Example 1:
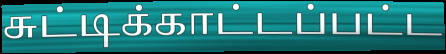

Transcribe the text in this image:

சுட்டிக்காட்டப்பட்ட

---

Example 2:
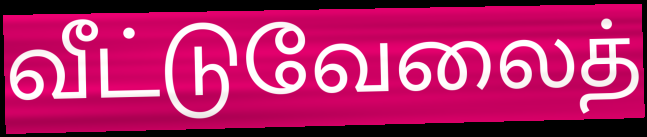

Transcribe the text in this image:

வீட்டுவேலைத்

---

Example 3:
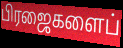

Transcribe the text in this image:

பிரஜைகளைப்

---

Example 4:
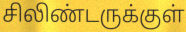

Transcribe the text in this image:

சிலிண்டருக்குள்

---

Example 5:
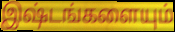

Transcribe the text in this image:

இஷ்டங்களையும்